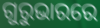
ଗୁରୁଭାରରେ